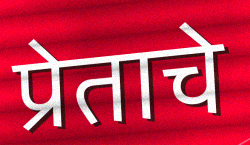
प्रेताचे